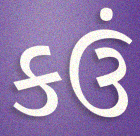
કઉં